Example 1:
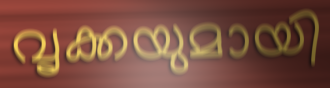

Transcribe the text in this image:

വൃക്കയുമായി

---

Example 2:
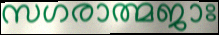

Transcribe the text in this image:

സഗരാത്മജാഃ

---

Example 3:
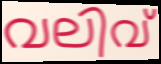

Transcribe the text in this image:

വലിവ്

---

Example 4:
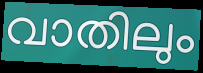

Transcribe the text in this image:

വാതിലും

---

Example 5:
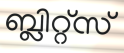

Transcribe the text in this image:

ബ്ലിറ്റ്സ്